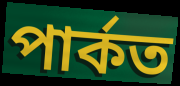
পাৰ্কত